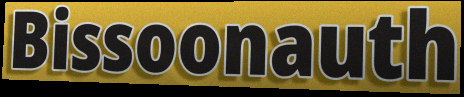
Bissoonauth